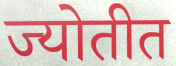
ज्योतीत